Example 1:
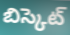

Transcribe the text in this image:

బిస్కెట్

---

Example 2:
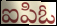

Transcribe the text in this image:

ఐపిఓ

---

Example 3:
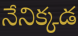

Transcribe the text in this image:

నేనిక్కడ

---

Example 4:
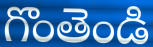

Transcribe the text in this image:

గొంతెండి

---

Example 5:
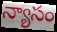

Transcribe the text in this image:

న్యాసం